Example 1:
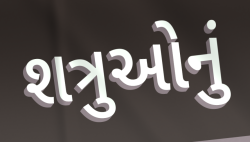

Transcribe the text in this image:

શત્રુઓનું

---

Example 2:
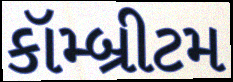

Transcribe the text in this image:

કૉમ્બ્રીટમ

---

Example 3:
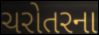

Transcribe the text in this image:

ચરોતરના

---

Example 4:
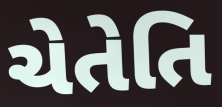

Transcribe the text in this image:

ચેતેતિ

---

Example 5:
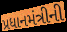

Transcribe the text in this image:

પ્રધાનમંત્રીની